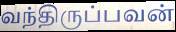
வந்திருப்பவன்